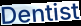
Dentist